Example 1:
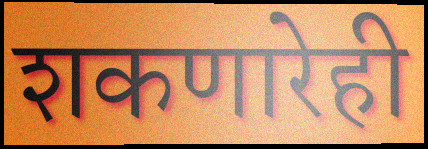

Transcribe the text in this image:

शकणारेही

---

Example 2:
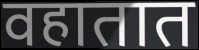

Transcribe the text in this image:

वहातात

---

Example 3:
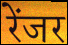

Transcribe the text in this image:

रेंजर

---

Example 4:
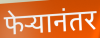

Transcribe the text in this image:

फेऱ्यानंतर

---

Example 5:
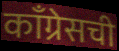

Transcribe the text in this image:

काँग्रेसची